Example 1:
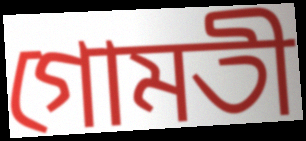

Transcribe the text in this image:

গোমতী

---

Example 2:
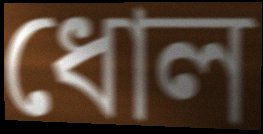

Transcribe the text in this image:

ধোল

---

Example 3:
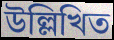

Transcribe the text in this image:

উল্লিখিত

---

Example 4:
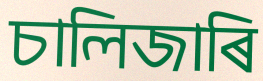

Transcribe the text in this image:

চালিজাৰি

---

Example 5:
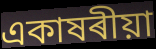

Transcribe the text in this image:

একাষৰীয়া